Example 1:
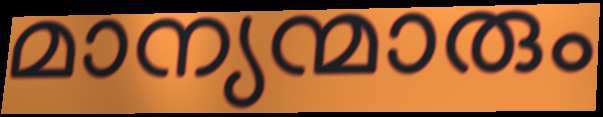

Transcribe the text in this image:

മാന്യന്മാരും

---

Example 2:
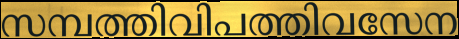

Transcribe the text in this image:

സമ്പത്തിവിപത്തിവസേന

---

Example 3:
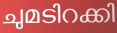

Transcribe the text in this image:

ചുമടിറക്കി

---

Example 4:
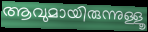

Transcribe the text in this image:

ആവുമായിരുന്നുള്ളൂ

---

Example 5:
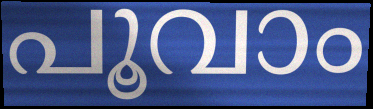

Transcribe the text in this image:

പൂവാം